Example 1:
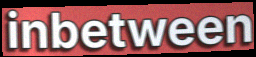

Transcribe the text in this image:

inbetween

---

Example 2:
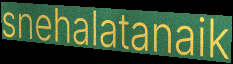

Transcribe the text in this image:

snehalatanaik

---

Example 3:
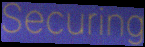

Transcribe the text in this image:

Securing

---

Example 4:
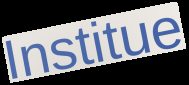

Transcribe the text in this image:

Institue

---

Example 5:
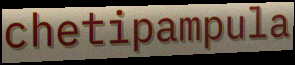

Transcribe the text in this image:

chetipampula